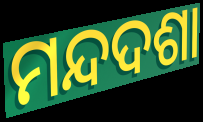
ମନ୍ଦଦଶା